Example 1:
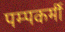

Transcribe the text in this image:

पम्पकर्मी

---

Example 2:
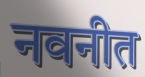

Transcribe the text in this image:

नवनीत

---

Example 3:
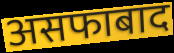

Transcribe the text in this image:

असफाबाद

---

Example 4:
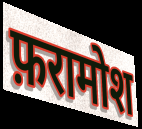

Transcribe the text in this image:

फ़रामोश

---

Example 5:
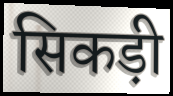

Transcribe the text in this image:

सिकड़ी